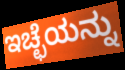
ಇಚ್ಛೆಯನ್ನು